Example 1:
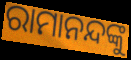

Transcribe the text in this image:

ରାମାନନ୍ଦଙ୍କୁ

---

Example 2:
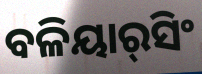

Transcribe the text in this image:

ବଳିୟାର୍‌ସିଂ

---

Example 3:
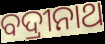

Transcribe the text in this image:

ବଦ୍ରୀନାଥ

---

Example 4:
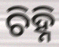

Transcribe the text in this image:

ଚିହ୍ନି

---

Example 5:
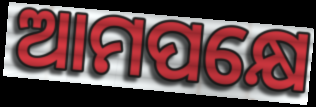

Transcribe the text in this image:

ଆମପକ୍ଷେ